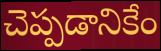
చెప్పడానికేం